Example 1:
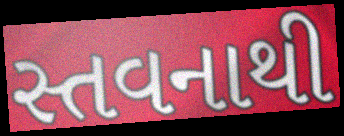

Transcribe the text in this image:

સ્તવનાથી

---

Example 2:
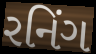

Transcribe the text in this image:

રનિંગ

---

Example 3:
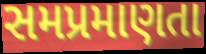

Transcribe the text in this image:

સમપ્રમાણતા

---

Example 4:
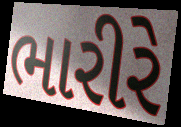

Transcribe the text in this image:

ભારીરે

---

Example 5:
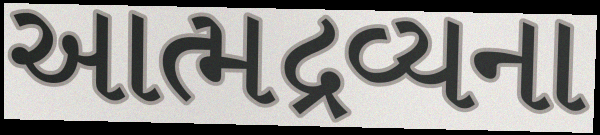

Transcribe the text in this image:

આત્મદ્રવ્યના